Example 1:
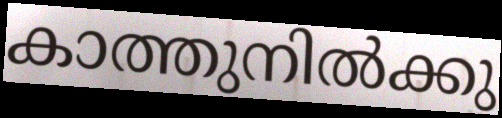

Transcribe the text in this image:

കാത്തുനിൽക്കു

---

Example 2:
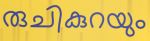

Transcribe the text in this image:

രുചികുറയും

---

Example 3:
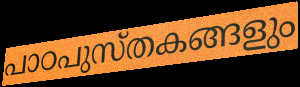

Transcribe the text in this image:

പാഠപുസ്തകങ്ങളും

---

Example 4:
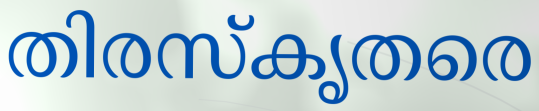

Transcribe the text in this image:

തിരസ്കൃതരെ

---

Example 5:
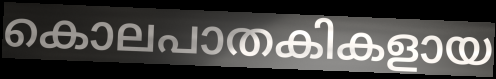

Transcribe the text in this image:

കൊലപാതകികളായ